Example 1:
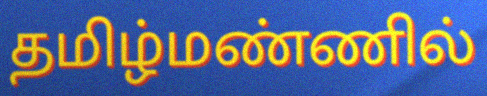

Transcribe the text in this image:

தமிழ்மண்ணில்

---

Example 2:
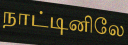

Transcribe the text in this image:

நாட்டினிலே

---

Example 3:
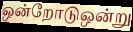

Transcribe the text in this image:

ஒன்றோடுஒன்று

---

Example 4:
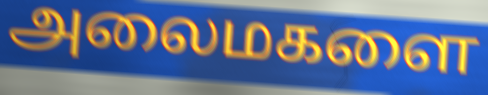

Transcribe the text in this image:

அலைமகளை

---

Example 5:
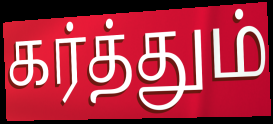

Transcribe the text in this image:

கர்த்தும்